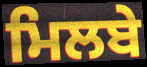
ਮਿਲਬੇ